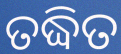
ତଦ୍ଧିତ